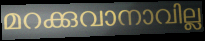
മറക്കുവാനാവില്ല